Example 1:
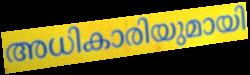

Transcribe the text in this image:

അധികാരിയുമായി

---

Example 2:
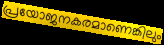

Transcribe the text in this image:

പ്രയോജനകരമാണെങ്കിലും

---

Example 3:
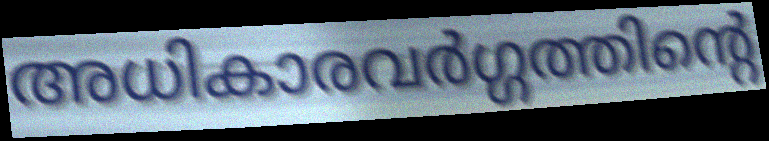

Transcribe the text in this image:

അധികാരവർഗ്ഗത്തിന്റെ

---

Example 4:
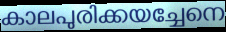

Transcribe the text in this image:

കാലപുരിക്കയച്ചേനെ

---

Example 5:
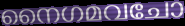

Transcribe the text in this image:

നൈഗമവചോ